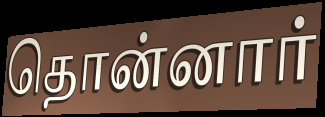
தொன்னார்